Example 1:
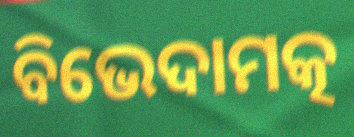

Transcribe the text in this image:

ବିଭେଦାମତ୍କ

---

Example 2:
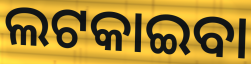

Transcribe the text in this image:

ଲଟକାଇବା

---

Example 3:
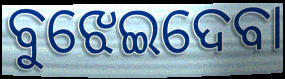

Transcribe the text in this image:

ବୁଝେଇଦେବା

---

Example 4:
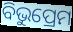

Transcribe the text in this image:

ବିଭୁପ୍ରେମ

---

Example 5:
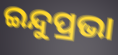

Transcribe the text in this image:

ଇନ୍ଦୁପ୍ରଭା